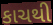
કાચથી